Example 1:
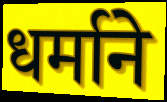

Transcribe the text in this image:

धर्माने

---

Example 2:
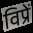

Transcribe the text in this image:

विप्रें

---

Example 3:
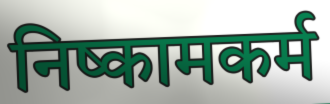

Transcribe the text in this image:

निष्कामकर्म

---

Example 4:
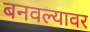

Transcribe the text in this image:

बनवल्यावर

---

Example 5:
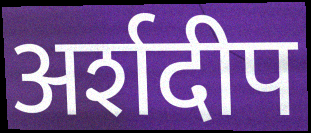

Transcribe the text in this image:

अर्शदीप